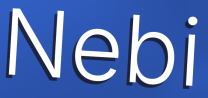
Nebi